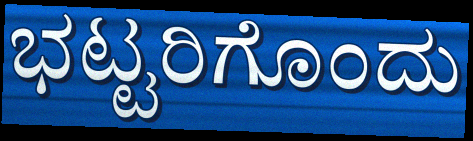
ಭಟ್ಟರಿಗೊಂದು